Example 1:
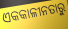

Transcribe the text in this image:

ଏକକାଳୀନତାରୁ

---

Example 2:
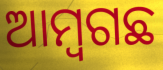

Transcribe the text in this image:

ଆମ୍ବଗଛ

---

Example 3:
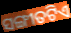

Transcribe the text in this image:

ସଙ୍ଗୀତଟିଏ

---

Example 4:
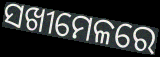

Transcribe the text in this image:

ସଖୀମେଳରେ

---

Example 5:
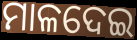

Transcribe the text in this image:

ମାଳଦେଇ